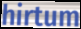
hirtum